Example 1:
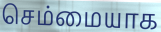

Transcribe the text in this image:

செம்மையாக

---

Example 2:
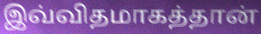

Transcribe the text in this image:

இவ்விதமாகத்தான்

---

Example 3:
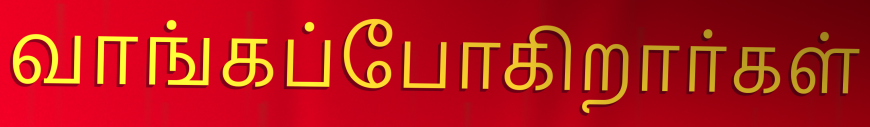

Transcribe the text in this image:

வாங்கப்போகிறார்கள்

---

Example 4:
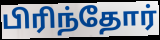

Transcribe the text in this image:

பிரிந்தோர்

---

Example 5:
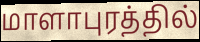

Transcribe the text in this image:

மாளாபுரத்தில்